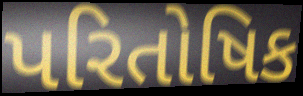
પરિતોષિક